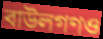
বাউলগণও